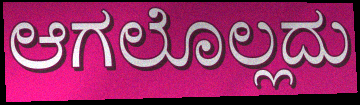
ಆಗಲೊಲ್ಲದು